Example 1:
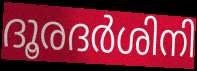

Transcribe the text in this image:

ദൂരദർശിനി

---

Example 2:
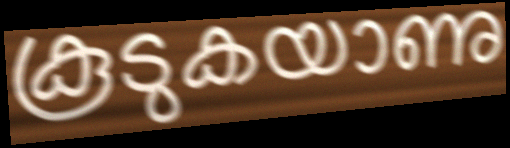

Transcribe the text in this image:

കൂടുകയാണു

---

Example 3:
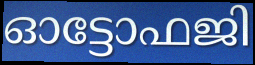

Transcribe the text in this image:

ഓട്ടോഫജി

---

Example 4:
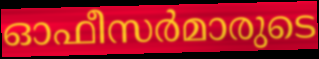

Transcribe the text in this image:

ഓഫീസർമാരുടെ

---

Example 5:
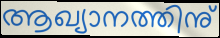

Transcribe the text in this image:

ആഖ്യാനത്തിനു്